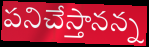
పనిచేస్తానన్న